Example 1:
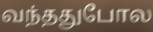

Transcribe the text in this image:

வந்ததுபோல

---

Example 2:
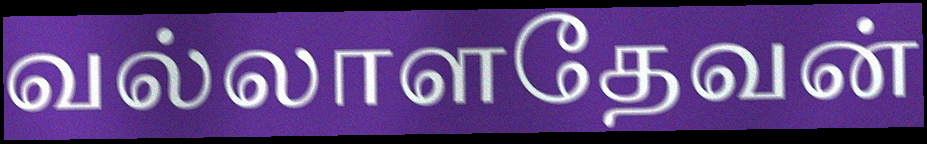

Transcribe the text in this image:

வல்லாளதேவன்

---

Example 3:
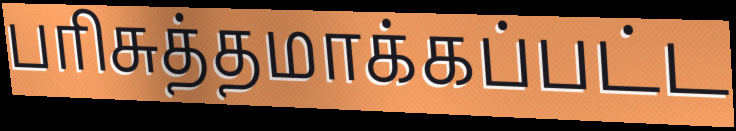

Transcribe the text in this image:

பரிசுத்தமாக்கப்பட்ட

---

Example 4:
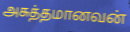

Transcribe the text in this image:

அசுத்தமானவன்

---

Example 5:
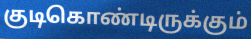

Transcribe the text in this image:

குடிகொண்டிருக்கும்